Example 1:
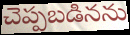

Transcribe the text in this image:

చెప్పబడినను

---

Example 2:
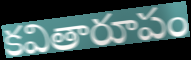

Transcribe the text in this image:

కవితారూపం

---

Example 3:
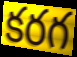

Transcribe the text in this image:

కరగ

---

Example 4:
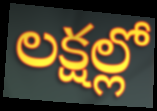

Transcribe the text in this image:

లక్షల్లో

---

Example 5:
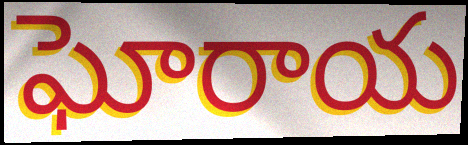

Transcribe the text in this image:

ఘోరాయ